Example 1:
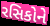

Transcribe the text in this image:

રસિકોને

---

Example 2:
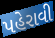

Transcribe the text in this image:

પહેરાવી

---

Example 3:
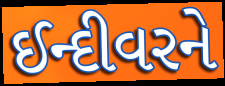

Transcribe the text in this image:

ઈન્દીવરને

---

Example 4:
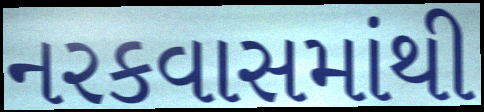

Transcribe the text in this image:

નરકવાસમાંથી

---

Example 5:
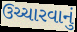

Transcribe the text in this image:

ઉચ્ચારવાનું